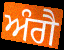
ਅੰਗੈ